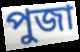
পুজা